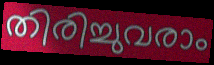
തിരിച്ചുവരാം